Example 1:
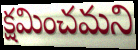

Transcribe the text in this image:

క్షమించమని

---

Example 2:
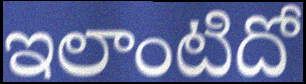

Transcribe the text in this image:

ఇలాంటిదో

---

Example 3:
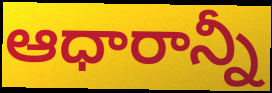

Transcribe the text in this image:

ఆధారాన్నీ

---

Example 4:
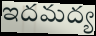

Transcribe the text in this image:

ఇదమద్య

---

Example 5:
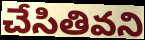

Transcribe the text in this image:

చేసితివని